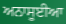
ਅਨਾਸੂਈਆ